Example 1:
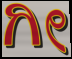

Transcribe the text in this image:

ಗೀ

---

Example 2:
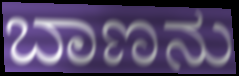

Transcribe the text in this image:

ಬಾಣನು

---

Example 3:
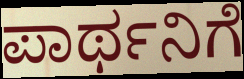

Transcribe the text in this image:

ಪಾರ್ಥನಿಗೆ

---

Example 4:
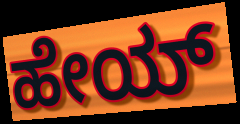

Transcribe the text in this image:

ಹೇಯ್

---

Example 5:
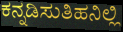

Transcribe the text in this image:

ಕನ್ನಡಿಸುತಿಹನಿಲ್ಲಿ